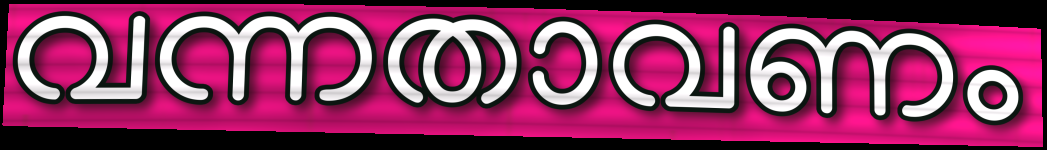
വന്നതാവണം